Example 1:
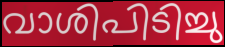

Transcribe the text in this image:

വാശിപിടിച്ചു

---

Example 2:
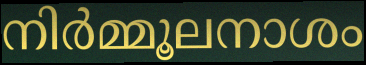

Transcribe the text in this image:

നിർമ്മൂലനാശം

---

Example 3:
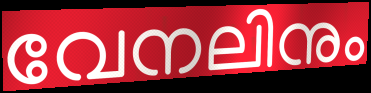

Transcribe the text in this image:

വേനലിനും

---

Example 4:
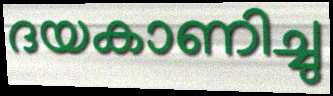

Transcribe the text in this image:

ദയകാണിച്ചു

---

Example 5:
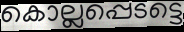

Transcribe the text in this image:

കൊല്ലപ്പെടട്ടെ